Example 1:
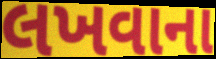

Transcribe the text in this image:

લખવાના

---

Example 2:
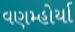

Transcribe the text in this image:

વણમ્હોર્યા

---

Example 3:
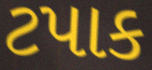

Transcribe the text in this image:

ટપાક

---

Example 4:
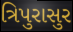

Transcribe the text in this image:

ત્રિપુરાસુર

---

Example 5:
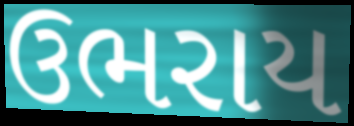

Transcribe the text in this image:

ઉભરાય